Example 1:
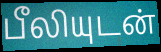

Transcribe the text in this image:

பீலியுடன்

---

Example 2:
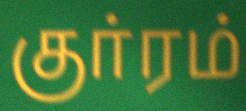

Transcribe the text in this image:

குர்ரம்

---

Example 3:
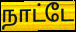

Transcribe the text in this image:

நாட்டே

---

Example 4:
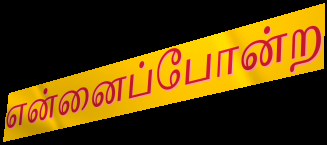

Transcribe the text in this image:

என்னைப்போன்ற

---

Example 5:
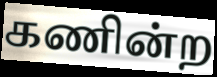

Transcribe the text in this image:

கணின்ற